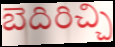
బెదిరిచ్చి